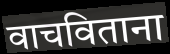
वाचविताना